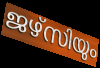
ജഴ്സിയും